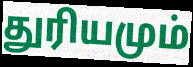
துரியமும்